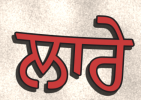
ਲਾਰੇ